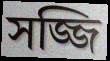
সজ্জি